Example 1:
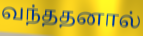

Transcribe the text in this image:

வந்ததனால்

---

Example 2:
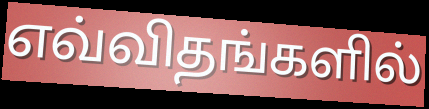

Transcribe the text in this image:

எவ்விதங்களில்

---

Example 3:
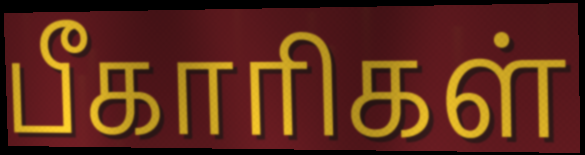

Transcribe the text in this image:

பீகாரிகள்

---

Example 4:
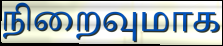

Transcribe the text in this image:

நிறைவுமாக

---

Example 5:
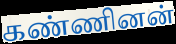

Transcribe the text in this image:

கண்ணினன்